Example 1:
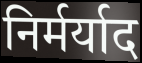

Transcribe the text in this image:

निर्मर्याद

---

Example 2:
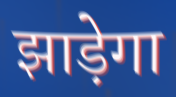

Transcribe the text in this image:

झाड़ेगा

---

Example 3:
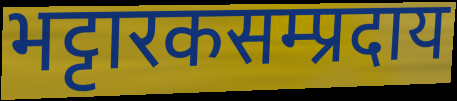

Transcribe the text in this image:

भट्टारकसम्प्रदाय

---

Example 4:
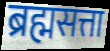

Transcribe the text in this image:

ब्रह्मसत्ता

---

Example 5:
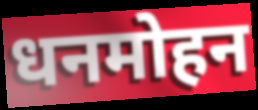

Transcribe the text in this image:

धनमोहन